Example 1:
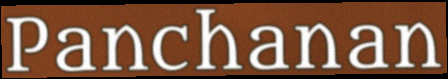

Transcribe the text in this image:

Panchanan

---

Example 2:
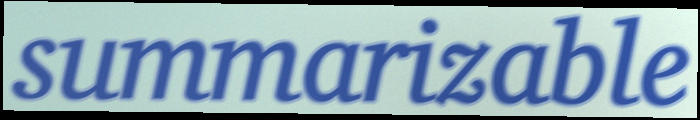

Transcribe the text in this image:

summarizable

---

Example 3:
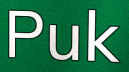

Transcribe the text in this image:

Puk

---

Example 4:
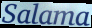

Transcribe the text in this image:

Salama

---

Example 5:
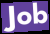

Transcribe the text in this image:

Job